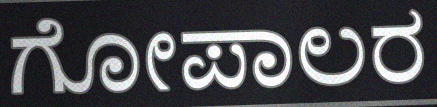
ಗೋಪಾಲರ